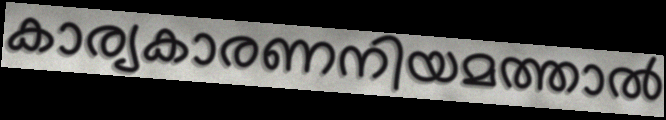
കാര്യകാരണനിയമത്താൽ